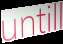
untill